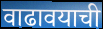
वाढावयाची